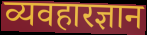
व्यवहारज्ञान